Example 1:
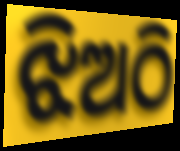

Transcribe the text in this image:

ଝିଅଠି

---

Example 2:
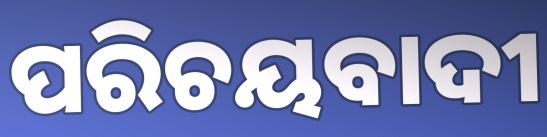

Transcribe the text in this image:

ପରିଚୟବାଦୀ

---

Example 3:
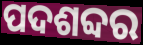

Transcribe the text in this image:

ପଦଶବ୍ଦର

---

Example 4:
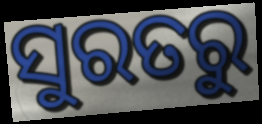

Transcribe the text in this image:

ସୁରତରୁ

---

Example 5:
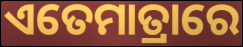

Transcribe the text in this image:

ଏତେମାତ୍ରାରେ